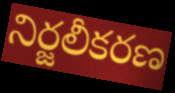
నిర్జలీకరణ